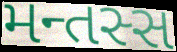
મન્તસ્સ